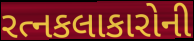
રત્નકલાકારોની